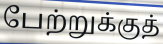
பேற்றுக்குத்